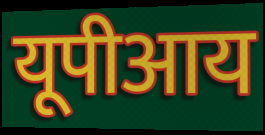
यूपीआय